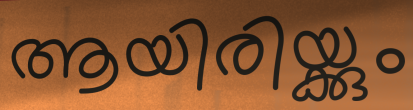
ആയിരിയ്ക്കും